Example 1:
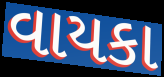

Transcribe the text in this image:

વાયકા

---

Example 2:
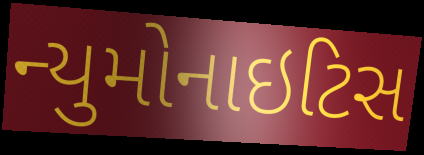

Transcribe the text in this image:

ન્યુમોનાઇટિસ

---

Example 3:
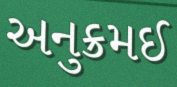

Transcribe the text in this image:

અનુક્રમઈ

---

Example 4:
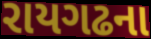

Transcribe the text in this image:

રાયગઢના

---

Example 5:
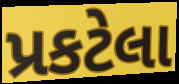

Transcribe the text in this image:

પ્રકટેલા